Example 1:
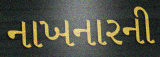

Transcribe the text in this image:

નાખનારની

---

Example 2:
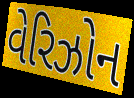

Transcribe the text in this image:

વેરિઝોન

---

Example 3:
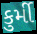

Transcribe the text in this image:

કુર્મી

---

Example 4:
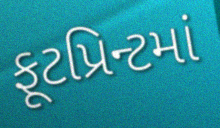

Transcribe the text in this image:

ફૂટપ્રિન્ટમાં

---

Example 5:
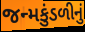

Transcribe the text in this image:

જન્મકુંડળીનું